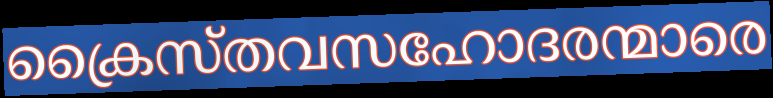
ക്രൈസ്തവസഹോദരന്മാരെ